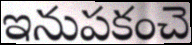
ఇనుపకంచె